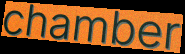
chamber